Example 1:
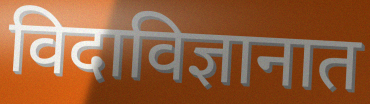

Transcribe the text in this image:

विदाविज्ञानात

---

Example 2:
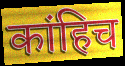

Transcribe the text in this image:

कांहिच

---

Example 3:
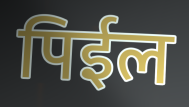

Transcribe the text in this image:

पिईल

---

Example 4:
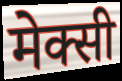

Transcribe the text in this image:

मेक्सी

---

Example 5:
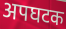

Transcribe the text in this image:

अपघटक